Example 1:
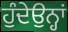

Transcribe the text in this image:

ਹੁੰਦੇਉਨ੍ਹਾਂ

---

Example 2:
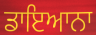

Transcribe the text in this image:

ਡਾਇਆਨਾ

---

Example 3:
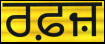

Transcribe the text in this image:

ਰਫ਼ਜ਼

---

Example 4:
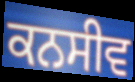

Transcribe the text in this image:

ਕਨਸੀਵ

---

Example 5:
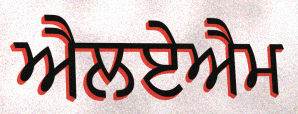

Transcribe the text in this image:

ਐਲਏਐਮ